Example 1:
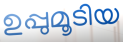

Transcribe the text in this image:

ഉപ്പുമൂടിയ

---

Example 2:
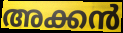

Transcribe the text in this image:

അക്കൻ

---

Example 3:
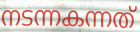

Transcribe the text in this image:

നടന്നകന്നത്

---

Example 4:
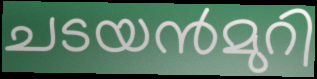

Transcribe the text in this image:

ചടയൻമുറി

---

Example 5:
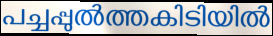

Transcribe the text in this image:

പച്ചപ്പുൽത്തകിടിയിൽ